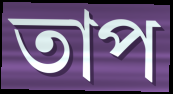
তাপ